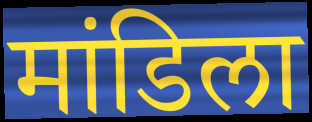
मांडिला